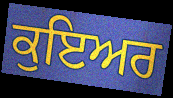
ਕੁਇਅਰ